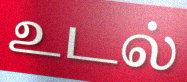
உடல்